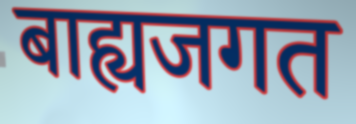
बाह्यजगत